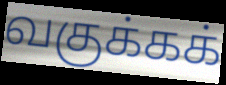
வகுக்கக்